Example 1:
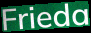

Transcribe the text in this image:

Frieda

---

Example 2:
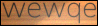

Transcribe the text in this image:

wewqe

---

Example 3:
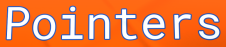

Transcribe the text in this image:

Pointers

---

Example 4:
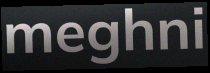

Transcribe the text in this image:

meghni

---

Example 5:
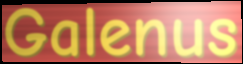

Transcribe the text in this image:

Galenus